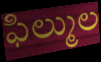
ఫిల్ముల